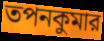
তপনকুমার